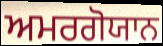
ਅਮਰਗੋਯਾਨ